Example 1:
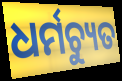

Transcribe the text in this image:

ଧର୍ମଚ୍ୟୁତ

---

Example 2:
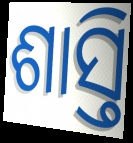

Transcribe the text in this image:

ଶାସ୍ତି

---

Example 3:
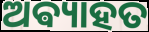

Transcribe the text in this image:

ଅଵ୍ୟାହତ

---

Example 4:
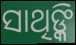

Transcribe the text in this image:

ସାଥିଙ୍କି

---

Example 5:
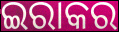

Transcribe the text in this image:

ଇରାକର